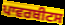
ਪਾਵਰਬੀਟਸ